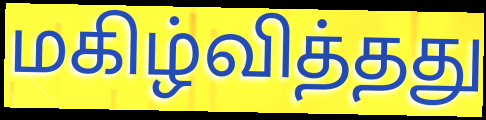
மகிழ்வித்தது